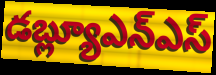
డబ్ల్యూఎన్ఎస్